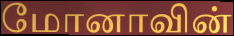
மோனாவின்